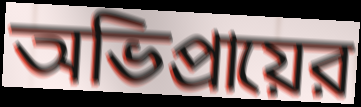
অভিপ্রায়ের